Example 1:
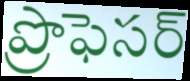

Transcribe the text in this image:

ప్రొఫెసర్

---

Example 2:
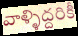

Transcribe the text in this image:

వాళ్ళిద్దరికీ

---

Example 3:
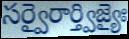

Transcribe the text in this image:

సర్వైరార్త్విజ్యైః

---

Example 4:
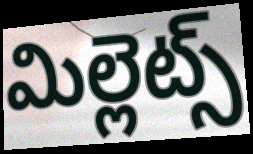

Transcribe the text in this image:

మిల్లెట్స్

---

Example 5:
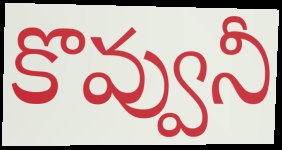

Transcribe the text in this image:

కొవ్వునీ